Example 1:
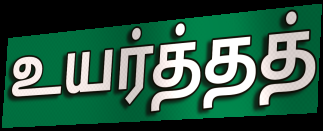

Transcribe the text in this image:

உயர்த்தத்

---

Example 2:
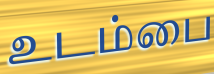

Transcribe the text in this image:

உடம்பை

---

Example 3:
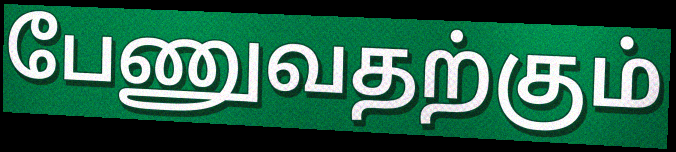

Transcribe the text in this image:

பேணுவதற்கும்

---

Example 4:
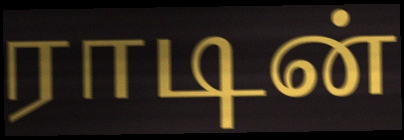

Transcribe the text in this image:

ராடின்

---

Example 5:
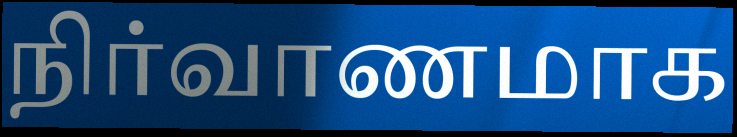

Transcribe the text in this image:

நிர்வாணமாக